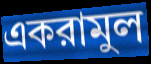
একরামুল